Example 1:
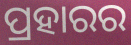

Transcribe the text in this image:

ପ୍ରହାରର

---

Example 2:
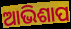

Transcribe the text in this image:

ଆଭିଶାପ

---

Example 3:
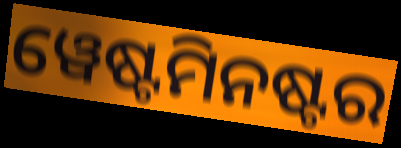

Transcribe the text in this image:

ୱେଷ୍ଟମିନଷ୍ଟର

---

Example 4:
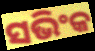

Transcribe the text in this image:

ସଭିଂକ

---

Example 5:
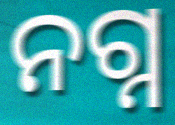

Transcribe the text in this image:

ନଗ୍ନ